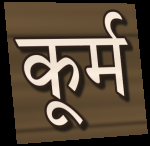
कूर्म